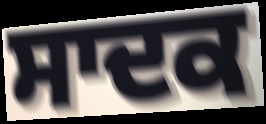
ਸਾਦਕ